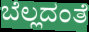
ಬೆಲ್ಲದಂತೆ